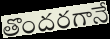
తొందరగానే